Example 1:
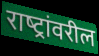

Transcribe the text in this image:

राष्ट्रांवरील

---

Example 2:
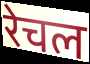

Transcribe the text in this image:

रेचल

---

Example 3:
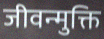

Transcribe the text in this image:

जीवन्मुक्ति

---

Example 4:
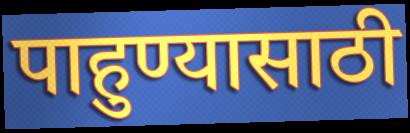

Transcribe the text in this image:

पाहुण्यासाठी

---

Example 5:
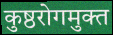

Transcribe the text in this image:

कुष्ठरोगमुक्त